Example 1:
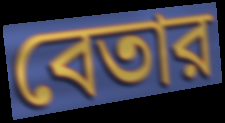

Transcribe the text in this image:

বেতার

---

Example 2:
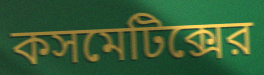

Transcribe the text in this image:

কসমেটিক্সের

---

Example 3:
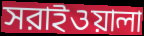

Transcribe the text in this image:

সরাইওয়ালা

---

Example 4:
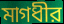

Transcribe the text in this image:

মাগধীর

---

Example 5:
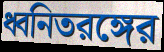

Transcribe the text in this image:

ধ্বনিতরঙ্গের